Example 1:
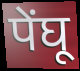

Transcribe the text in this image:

पेंघू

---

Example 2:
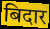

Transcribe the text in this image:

बिदार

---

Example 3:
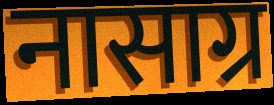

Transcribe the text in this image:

नासाग्र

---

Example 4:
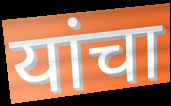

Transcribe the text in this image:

यांचा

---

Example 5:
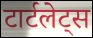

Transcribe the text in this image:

टार्टलेट्स